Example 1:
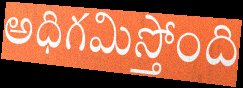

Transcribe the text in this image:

అధిగమిస్తోంది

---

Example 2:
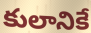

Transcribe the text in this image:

కులానికే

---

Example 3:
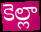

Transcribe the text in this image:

కెల్లా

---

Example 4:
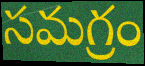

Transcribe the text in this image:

సమగ్రం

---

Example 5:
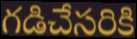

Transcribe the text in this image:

గడిచేసరికి